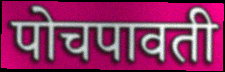
पोचपावती